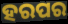
ହରପର